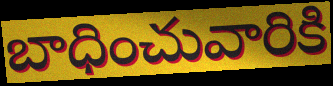
బాధించువారికి